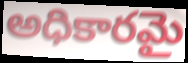
అధికారమై